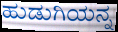
ಹುಡುಗಿಯನ್ನ